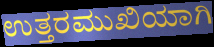
ಉತ್ತರಮುಖಿಯಾಗಿ